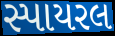
સ્પાયરલ